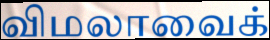
விமலாவைக்